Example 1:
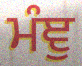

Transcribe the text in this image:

ਮੰਞੁ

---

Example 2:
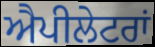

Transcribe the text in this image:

ਐਪੀਲੇਟਰਾਂ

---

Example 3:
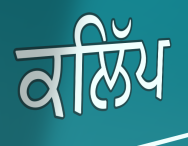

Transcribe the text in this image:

ਕਲਿੱਪ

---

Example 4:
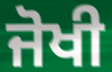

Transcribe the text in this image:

ਜੋਖੀ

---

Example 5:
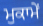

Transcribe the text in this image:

ਮੁਕਾਮੇਂ